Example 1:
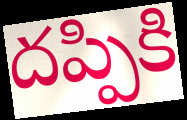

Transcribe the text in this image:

దప్పికి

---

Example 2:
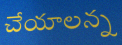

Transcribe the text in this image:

చేయాలన్న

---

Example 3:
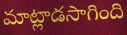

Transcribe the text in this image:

మాట్లాడసాగింది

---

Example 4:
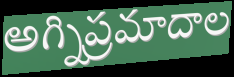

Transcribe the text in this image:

అగ్నిప్రమాదాల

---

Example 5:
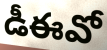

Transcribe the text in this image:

డీఈవో